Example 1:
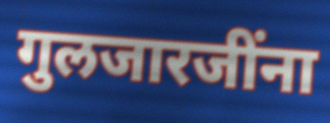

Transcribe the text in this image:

गुलजारजींना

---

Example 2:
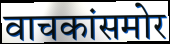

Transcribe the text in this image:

वाचकांसमोर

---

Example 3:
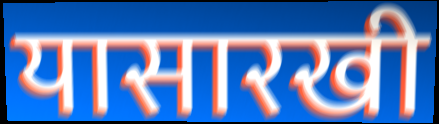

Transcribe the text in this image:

यासारखी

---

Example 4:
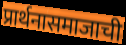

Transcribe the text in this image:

प्रार्थनासमाजाची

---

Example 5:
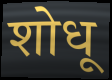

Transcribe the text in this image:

शोधू